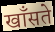
खाँसते